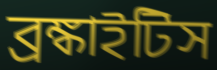
ব্রঙ্কাইটিস